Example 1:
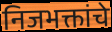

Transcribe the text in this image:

निजभक्तांचे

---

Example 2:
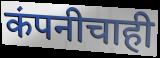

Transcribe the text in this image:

कंपनीचाही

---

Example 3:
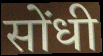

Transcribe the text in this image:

सोंधी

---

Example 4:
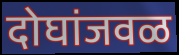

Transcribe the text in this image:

दोघांजवळ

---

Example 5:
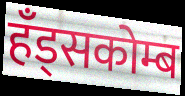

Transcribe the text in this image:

हँड्सकोम्ब